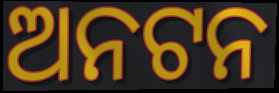
ଅନଟନ